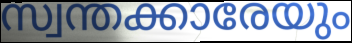
സ്വന്തക്കാരേയും